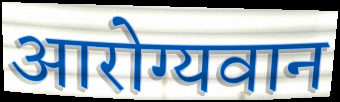
आरोग्यवान